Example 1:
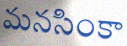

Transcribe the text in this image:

మనసింకా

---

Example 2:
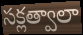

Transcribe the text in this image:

సక్లత్వాలా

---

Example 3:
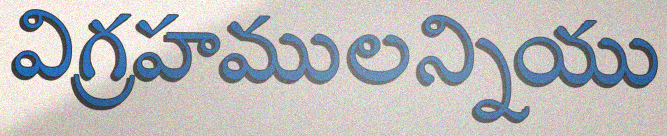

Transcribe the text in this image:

విగ్రహములన్నియు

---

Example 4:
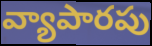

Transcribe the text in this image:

వ్యాపారపు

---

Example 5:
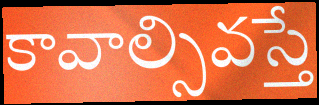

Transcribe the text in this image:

కావాల్సివస్తే